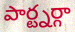
పార్ట్నర్గా